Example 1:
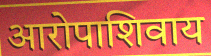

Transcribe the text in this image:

आरोपाशिवाय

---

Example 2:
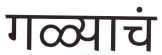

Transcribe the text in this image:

गळ्याचं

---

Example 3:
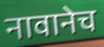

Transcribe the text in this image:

नावानेच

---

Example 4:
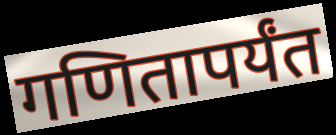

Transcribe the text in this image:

गणितापर्यंत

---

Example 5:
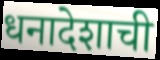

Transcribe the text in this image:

धनादेशाची